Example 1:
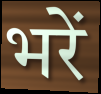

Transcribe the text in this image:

भरें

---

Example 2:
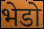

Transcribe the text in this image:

भेडो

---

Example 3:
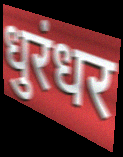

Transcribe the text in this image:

धुरंधर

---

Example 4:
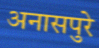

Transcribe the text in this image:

अनासपुरे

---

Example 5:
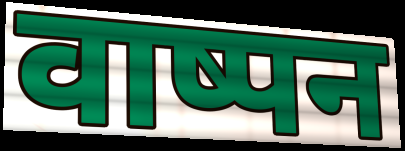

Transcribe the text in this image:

वाष्पन